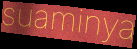
suaminya